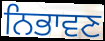
ਨਿਭਾਵਣ